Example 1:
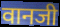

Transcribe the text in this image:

वानजी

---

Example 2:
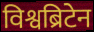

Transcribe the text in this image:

विश्वब्रिटेन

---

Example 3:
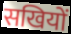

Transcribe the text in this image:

सखियों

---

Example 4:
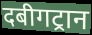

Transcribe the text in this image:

दबीगट्रान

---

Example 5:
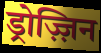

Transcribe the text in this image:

ड्रोज़्ज़िन